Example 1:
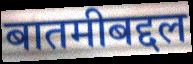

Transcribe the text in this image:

बातमीबद्दल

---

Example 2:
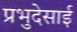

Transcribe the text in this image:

प्रभुदेसाई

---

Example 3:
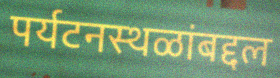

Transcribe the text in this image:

पर्यटनस्थळांबद्दल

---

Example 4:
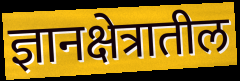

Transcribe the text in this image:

ज्ञानक्षेत्रातील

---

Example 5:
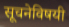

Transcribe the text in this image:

सूचनेविषयी